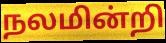
நலமின்றி